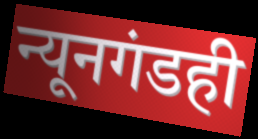
न्यूनगंडही